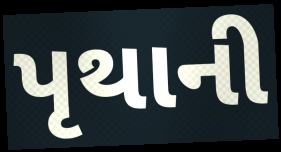
પૃથાની